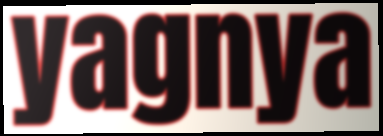
yagnya